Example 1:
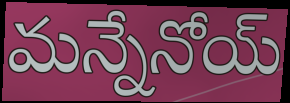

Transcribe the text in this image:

మన్నేనోయ్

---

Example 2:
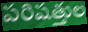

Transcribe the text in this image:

పరిషత్తుల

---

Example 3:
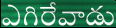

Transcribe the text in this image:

ఎగిరేవాడు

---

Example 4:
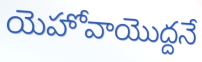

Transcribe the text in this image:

యెహోవాయొద్దనే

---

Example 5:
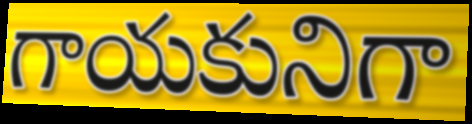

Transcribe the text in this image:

గాయకునిగా